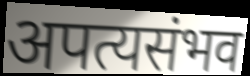
अपत्यसंभव